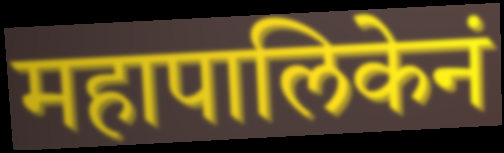
महापालिकेनं